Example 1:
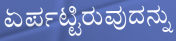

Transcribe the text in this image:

ಏರ್ಪಟ್ಟಿರುವುದನ್ನು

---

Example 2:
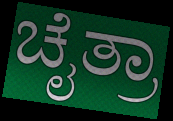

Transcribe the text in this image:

ಚೈತ್ರಾ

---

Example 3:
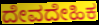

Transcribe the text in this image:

ದೇವದೇಹಿಕ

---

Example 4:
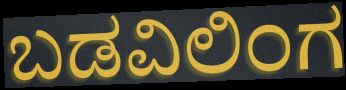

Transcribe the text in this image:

ಬಡವಿಲಿಂಗ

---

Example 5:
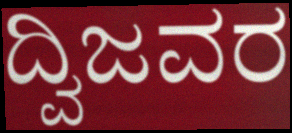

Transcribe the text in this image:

ದ್ವಿಜವರ